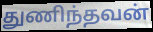
துணிந்தவன்